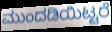
ಮುಂದಡಿಯಿಟ್ಟರೆ